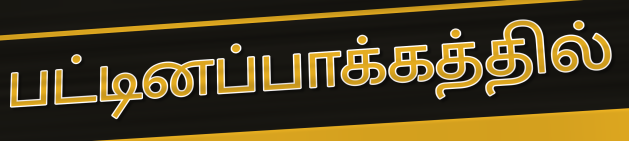
பட்டினப்பாக்கத்தில்